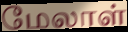
மேலாள்